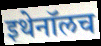
इथेनॉलच